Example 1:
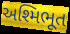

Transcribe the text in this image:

અશ્મિભૂત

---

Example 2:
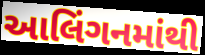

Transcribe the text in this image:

આલિંગનમાંથી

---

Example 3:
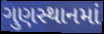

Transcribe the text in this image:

ગુણસ્થાનમાં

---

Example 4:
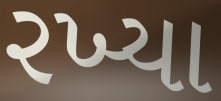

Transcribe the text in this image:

રખ્યા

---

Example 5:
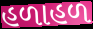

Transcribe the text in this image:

હળાહળ